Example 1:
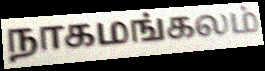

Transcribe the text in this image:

நாகமங்கலம்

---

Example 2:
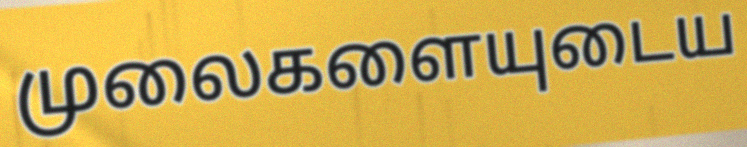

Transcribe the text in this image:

முலைகளையுடைய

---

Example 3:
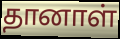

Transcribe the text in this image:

தானாள்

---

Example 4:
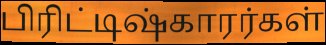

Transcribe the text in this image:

பிரிட்டிஷ்காரர்கள்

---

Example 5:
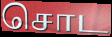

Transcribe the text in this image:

சொட